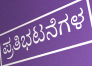
ಪ್ರತಿಭಟನೆಗಳ